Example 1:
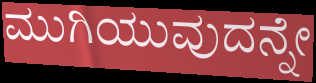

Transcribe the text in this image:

ಮುಗಿಯುವುದನ್ನೇ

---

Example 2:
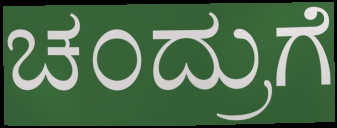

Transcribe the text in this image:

ಚಂದ್ರುಗೆ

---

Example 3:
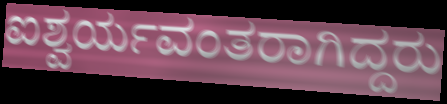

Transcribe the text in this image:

ಐಶ್ವರ್ಯವಂತರಾಗಿದ್ದರು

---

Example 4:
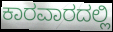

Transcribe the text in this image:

ಕಾರವಾರದಲ್ಲಿ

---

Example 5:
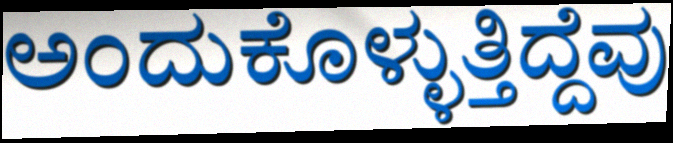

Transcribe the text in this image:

ಅಂದುಕೊಳ್ಳುತ್ತಿದ್ದೆವು